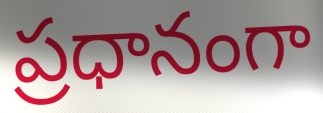
ప్రధానంగా